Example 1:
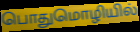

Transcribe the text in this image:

பொதுமொழியில்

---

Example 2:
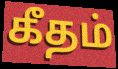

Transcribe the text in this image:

கீதம்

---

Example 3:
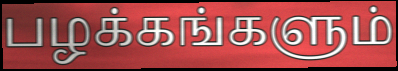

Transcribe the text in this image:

பழக்கங்களும்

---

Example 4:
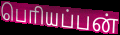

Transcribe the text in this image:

பெரியப்பன்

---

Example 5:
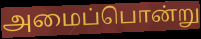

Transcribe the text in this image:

அமைப்பொன்று